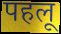
पहलू